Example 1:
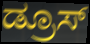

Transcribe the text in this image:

ಡ್ರೂಸ್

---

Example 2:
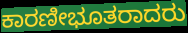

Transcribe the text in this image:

ಕಾರಣೀಭೂತರಾದರು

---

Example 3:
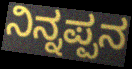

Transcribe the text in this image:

ನಿನ್ನಪ್ಪನ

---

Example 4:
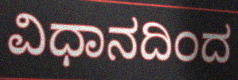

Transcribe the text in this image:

ವಿಧಾನದಿಂದ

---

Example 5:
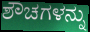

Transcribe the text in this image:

ಶೌಚಗಳನ್ನು